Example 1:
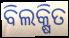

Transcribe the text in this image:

ବିଲକ୍ଷିତ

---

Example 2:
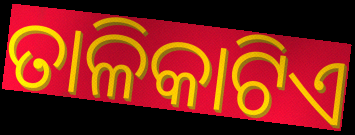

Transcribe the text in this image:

ତାଳିକାଟିଏ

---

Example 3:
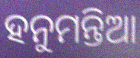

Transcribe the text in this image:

ହନୁମନ୍ତିଆ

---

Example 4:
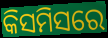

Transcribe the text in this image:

କିସମିସରେ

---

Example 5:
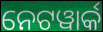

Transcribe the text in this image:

ନେଟୱାର୍କ